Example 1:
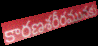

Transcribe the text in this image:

కారణశరీరమునకు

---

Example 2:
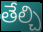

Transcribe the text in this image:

తేల్చి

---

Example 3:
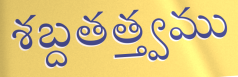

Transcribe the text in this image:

శబ్దతత్త్వము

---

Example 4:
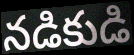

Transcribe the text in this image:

నడికుడి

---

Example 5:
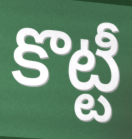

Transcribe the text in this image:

కొట్టీ